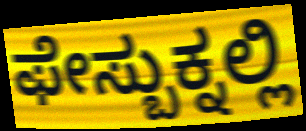
ಫೇಸ್ಬುಕ್ನಲ್ಲಿ